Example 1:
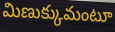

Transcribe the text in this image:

మిణుక్కుమంటూ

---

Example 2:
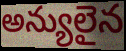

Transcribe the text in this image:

అన్యులైన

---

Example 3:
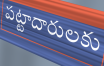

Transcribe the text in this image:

పట్టాదారులకు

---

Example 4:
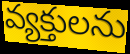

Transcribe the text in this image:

వ్యక్తులను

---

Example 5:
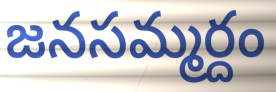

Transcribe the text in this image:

జనసమ్మర్దం